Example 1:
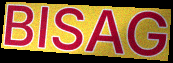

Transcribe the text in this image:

BISAG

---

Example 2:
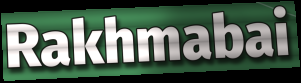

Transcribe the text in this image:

Rakhmabai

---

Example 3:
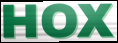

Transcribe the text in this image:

HOX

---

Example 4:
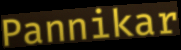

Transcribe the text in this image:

Pannikar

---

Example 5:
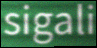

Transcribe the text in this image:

sigali